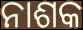
ନାଶକ